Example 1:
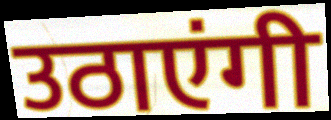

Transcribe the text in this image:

उठाएंगी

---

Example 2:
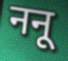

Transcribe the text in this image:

ननू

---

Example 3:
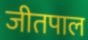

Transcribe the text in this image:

जीतपाल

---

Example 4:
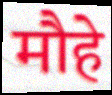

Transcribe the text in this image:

मौहे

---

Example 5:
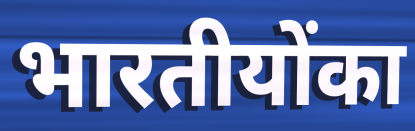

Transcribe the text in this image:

भारतीयोंका